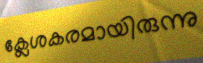
ക്ലേശകരമായിരുന്നു